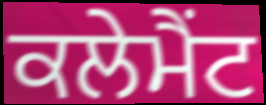
ਕਲੇਮੈਂਟ